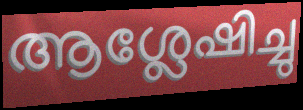
ആശ്ലേഷിച്ചു